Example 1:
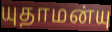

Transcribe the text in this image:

யுதாமன்யு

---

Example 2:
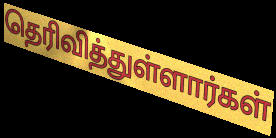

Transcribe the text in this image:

தெரிவித்துள்ளார்கள்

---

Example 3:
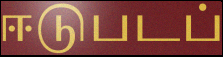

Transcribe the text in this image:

ஈடுபடப்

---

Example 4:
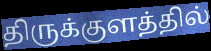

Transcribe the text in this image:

திருக்குளத்தில்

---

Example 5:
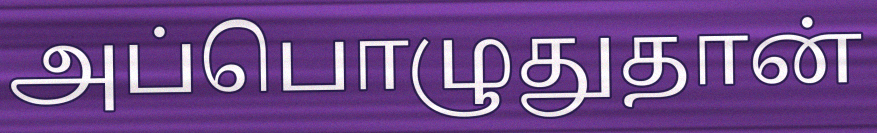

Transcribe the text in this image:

அப்பொழுதுதான்